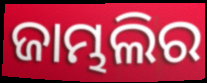
ଜାମ୍ଭଲିର